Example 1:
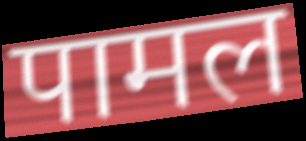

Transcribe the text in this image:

पामल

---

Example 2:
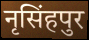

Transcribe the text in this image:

नृसिंहपुर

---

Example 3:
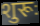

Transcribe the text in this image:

शुरूः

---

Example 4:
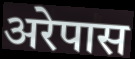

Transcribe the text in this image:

अरेपास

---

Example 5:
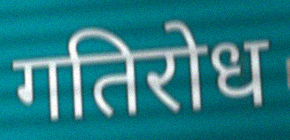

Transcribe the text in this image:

गतिरोध